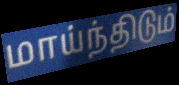
மாய்ந்திடும்